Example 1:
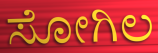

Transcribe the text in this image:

ಸೋಗಿಲ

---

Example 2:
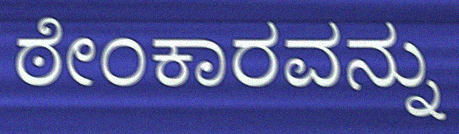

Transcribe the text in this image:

ಠೇಂಕಾರವನ್ನು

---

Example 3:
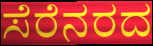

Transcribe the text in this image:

ಸೆರೆನರದ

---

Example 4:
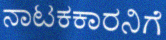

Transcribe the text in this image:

ನಾಟಕಕಾರನಿಗೆ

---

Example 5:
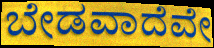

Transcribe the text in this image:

ಬೇಡವಾದೆವೇ